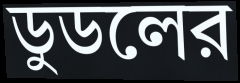
ডুডলের